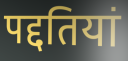
पद्दतियां